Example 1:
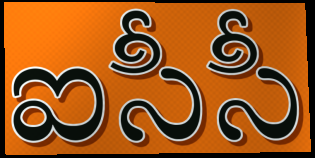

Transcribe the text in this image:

ఐసీసీ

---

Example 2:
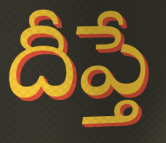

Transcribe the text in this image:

దీప్తే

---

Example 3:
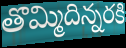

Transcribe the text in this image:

తొమ్మిదిన్నరకి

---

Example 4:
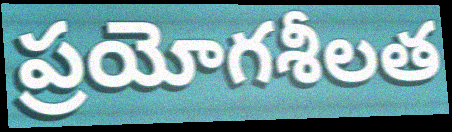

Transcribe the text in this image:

ప్రయోగశీలత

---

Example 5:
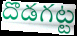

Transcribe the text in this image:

దొడగట్ట